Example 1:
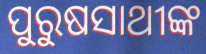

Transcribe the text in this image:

ପୁରୁଷସାଥୀଙ୍କ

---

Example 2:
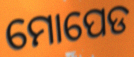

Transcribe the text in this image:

ମୋପେଡ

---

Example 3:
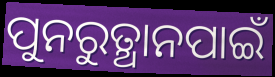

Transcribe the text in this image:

ପୁନରୁତ୍ଥାନପାଇଁ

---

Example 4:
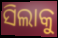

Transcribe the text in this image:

ସିଲାକୁ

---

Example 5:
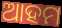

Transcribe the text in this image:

ଆହମ